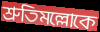
শ্রুতিমল্লোকে